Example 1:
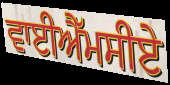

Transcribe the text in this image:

ਵਾਈਐੱਮਸੀਏ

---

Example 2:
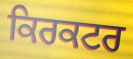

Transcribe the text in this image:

ਕਿਰਕਟਰ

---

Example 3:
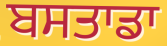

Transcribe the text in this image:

ਬਸਤਾਡਾ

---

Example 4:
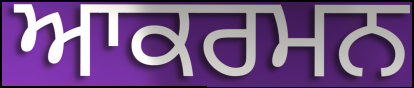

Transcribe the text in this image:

ਆਕਰਮਨ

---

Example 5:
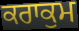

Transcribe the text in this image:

ਕਰਾਕੁਮ